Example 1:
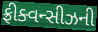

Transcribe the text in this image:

ફ્રીક્વન્સીઝની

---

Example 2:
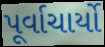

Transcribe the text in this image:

પૂર્વાચાર્યો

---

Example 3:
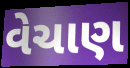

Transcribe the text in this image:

વેચાણ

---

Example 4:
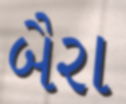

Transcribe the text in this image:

બૈરા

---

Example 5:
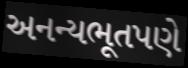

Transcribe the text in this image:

અનન્યભૂતપણે